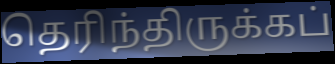
தெரிந்திருக்கப்